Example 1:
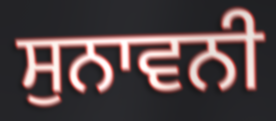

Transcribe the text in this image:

ਸੁਨਾਵਨੀ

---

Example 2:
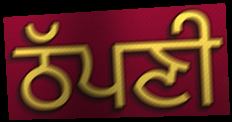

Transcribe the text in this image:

ਠੱਪਣੀ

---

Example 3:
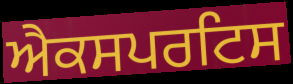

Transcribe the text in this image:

ਐਕਸਪਰਟਿਸ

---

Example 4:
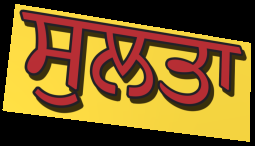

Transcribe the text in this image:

ਸੁਲਤਾ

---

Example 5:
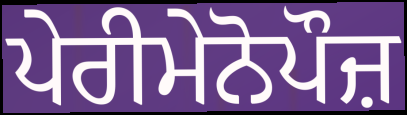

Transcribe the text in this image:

ਪੇਰੀਮੇਨੋਪੌਜ਼